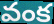
వంక